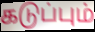
கடுப்பும்